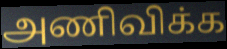
அணிவிக்க